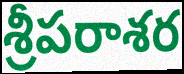
శ్రీపరాశర